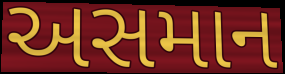
અસમાન